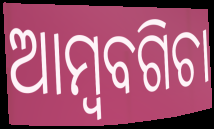
ଆମ୍ବବଗିଚା